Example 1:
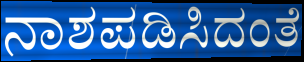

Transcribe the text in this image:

ನಾಶಪಡಿಸಿದಂತೆ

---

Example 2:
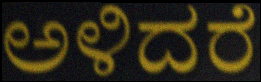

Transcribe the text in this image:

ಅಳಿದರೆ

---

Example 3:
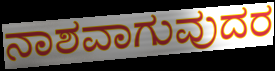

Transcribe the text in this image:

ನಾಶವಾಗುವುದರ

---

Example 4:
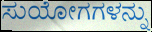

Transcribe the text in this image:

ಸುಯೋಗಗಳನ್ನು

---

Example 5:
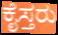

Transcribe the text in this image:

ಕೈಸ್ತರು